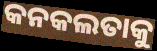
କନକଲତାକୁ